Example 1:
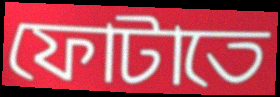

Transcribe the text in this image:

ফোটাতে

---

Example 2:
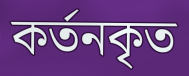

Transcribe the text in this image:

কর্তনকৃত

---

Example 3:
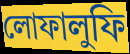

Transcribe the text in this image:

লোফালুফি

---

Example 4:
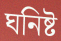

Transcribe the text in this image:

ঘনিষ্ট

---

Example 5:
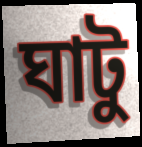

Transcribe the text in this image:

ঘাটু